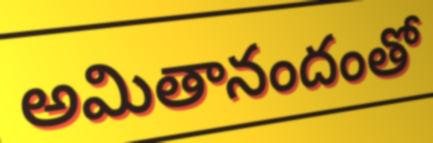
అమితానందంతో